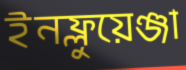
ইনফ্লুয়েঞ্জা